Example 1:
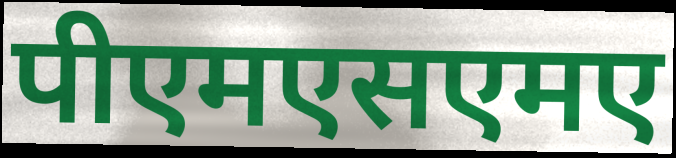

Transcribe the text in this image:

पीएमएसएमए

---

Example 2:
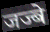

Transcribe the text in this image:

जज्बे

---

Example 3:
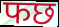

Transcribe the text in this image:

फछ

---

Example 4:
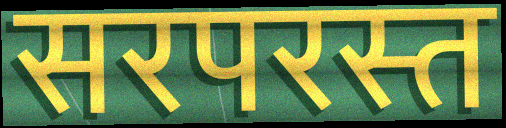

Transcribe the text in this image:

सरपरस्त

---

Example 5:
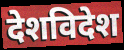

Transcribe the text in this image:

देशविदेश